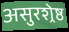
असुरश्रेष्ठ